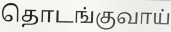
தொடங்குவாய்